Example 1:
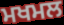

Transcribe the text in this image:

ਮਖਮਲ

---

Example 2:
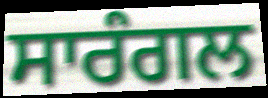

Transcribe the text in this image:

ਸਾਰੰਗਲ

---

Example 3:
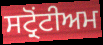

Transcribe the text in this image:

ਸਟ੍ਰੋਂਟੀਅਮ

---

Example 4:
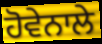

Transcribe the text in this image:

ਹੋਵੇਨਾਲੇ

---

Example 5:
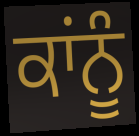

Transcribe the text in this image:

ਕਾਂਨੂੰ